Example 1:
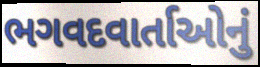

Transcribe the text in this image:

ભગવદવાર્તાઓનું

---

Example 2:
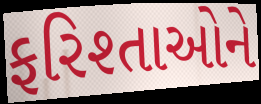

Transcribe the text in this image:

ફરિશ્તાઓને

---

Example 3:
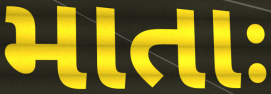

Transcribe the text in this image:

માતાઃ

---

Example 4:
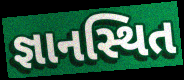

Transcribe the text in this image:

જ્ઞાનસ્થિત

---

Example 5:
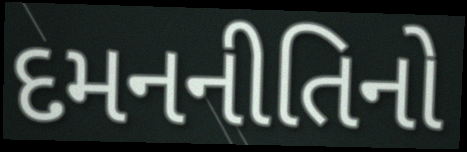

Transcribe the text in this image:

દમનનીતિનો